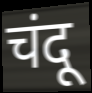
चंदू